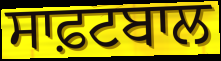
ਸਾਫ਼ਟਬਾਲ